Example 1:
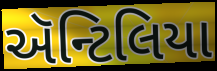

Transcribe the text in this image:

ઍન્ટિલિયા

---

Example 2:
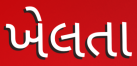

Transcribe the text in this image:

ખેલતા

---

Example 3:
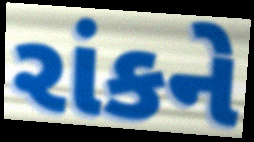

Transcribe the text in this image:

રાંકને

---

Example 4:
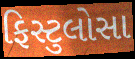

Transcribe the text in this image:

ફિસ્ટુલોસા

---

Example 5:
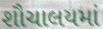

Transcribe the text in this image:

શૌચાલયમાં